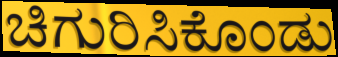
ಚಿಗುರಿಸಿಕೊಂಡು